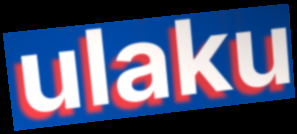
ulaku